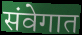
संवेगात